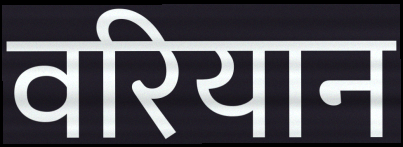
वरियान